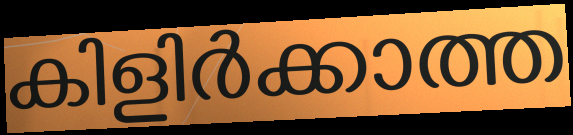
കിളിർക്കാത്ത